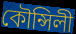
কৌন্সিলী